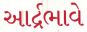
આર્દ્રભાવે